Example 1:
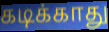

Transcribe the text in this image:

கடிக்காது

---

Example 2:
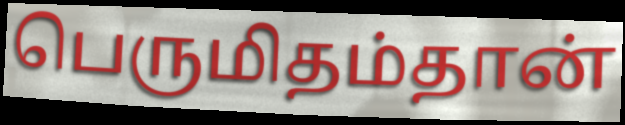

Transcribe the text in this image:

பெருமிதம்தான்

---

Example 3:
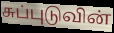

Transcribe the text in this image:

சுப்புடுவின்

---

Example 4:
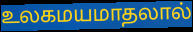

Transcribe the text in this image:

உலகமயமாதலால்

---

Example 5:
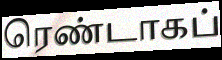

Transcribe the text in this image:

ரெண்டாகப்